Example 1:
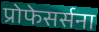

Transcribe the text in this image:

प्रोफेसर्सना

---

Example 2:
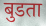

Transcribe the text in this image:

बुडता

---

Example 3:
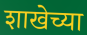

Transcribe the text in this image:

शाखेच्या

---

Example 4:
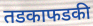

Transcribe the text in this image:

तडकाफडकी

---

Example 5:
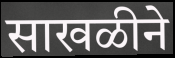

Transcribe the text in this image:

साखळीने